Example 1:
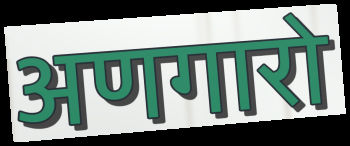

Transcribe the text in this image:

अणगारो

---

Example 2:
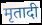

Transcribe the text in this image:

मृतादी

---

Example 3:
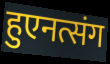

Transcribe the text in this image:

हुएनत्संग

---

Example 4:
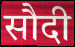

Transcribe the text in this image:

सौदी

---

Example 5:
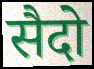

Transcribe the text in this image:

सैदो